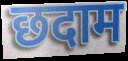
छदाम